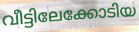
വീട്ടിലേക്കോടിയ